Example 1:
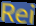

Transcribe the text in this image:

Rei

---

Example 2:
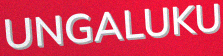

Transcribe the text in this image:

UNGALUKU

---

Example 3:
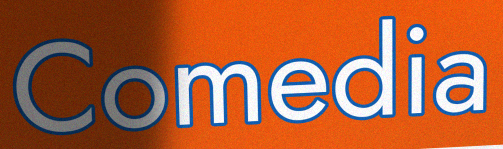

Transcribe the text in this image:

Comedia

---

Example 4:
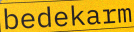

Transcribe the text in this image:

bedekarm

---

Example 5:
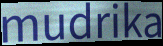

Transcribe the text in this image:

mudrika